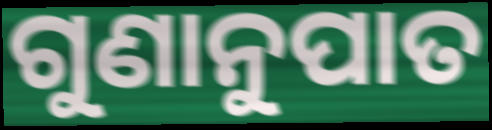
ଗୁଣାନୁପାତ